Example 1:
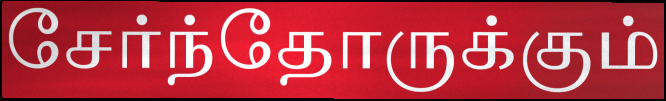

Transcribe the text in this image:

சேர்ந்தோருக்கும்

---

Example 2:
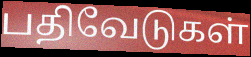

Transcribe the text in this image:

பதிவேடுகள்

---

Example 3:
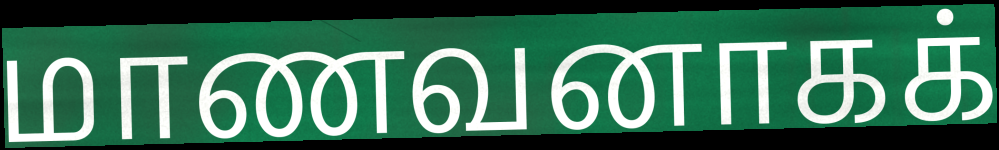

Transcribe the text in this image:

மாணவனாகக்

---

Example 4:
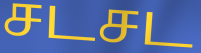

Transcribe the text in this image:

சடசட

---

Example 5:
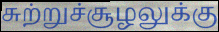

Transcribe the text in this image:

சுற்றுச்சூழலுக்கு